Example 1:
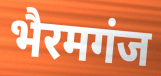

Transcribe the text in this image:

भैरमगंज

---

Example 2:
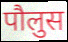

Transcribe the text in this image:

पौलुस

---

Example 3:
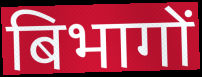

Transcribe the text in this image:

बिभागों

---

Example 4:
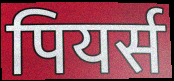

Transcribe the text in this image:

पियर्स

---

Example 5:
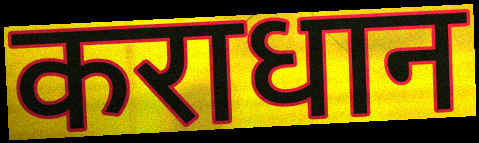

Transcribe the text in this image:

कराधान